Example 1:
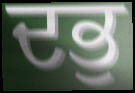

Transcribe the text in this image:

ਦਭੁ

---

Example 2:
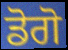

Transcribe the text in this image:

ਡੋਗੋ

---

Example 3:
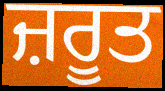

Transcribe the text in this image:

ਜ਼ਰੂਤ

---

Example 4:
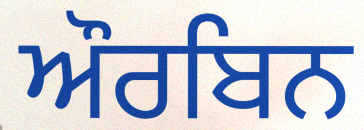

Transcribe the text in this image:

ਔਰਬਿਨ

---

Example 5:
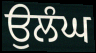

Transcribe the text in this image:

ਉਲੰਘ